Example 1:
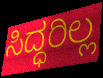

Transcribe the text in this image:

ಸಿದ್ಧರಿಲ್ಲ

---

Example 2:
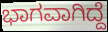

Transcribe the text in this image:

ಭಾಗವಾಗಿದ್ದೆ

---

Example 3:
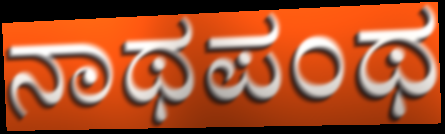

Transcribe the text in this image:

ನಾಥಪಂಥ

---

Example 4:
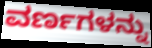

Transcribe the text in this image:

ವರ್ಣಗಳನ್ನು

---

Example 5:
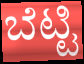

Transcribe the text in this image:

ಬೆಟ್ಟಿ